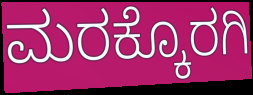
ಮರಕ್ಕೊರಗಿ